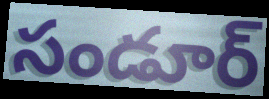
సండూర్